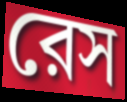
রেস